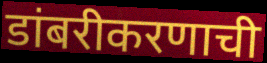
डांबरीकरणाची